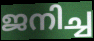
ജനിച്ച